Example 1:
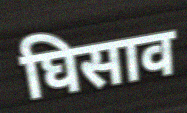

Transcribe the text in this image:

घिसाव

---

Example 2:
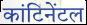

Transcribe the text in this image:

कांटिनेंटल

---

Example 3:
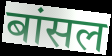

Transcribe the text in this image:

बांसल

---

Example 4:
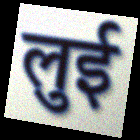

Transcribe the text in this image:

लुई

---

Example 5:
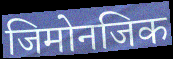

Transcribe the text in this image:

जिमोनजिक